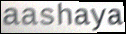
aashaya